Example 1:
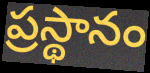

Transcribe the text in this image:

ప్రస్థానం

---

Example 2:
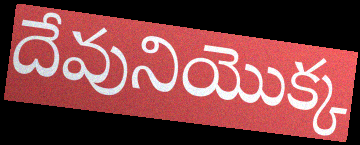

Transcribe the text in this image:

దేవునియొక్క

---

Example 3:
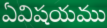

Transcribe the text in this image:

ఏవిషయము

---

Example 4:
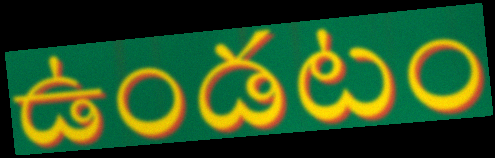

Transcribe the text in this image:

ఉండటం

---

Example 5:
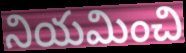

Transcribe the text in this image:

నియమించి